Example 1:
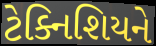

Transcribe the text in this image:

ટેક્નિશિયને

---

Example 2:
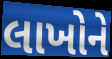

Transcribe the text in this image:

લાખોને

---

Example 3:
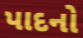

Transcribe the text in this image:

પાદનો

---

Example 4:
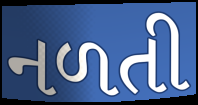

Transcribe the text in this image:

નળતી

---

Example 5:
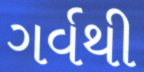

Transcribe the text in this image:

ગર્વથી